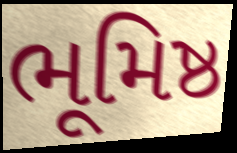
ભૂમિષ્ઠ